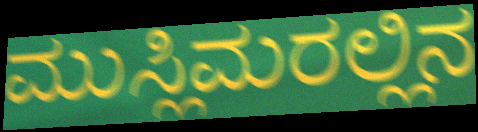
ಮುಸ್ಲಿಮರಲ್ಲಿನ